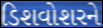
ડિશવોશરને